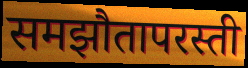
समझौतापरस्ती